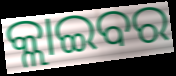
କ୍ଲାଇବର